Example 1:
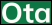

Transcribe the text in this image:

Ota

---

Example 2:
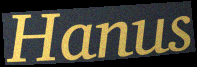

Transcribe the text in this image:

Hanus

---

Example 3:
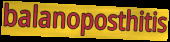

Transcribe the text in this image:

balanoposthitis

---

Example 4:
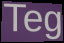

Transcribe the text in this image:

Teg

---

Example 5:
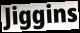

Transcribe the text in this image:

Jiggins